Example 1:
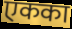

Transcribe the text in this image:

एकका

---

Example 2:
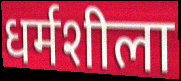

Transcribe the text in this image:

धर्मशीला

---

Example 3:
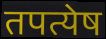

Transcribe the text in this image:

तपत्येष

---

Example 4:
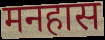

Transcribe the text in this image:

मनहास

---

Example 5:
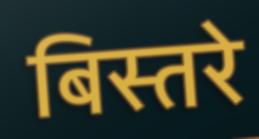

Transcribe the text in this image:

बिस्तरे